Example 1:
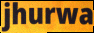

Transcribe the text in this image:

jhurwa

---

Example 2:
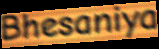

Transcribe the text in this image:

Bhesaniya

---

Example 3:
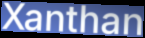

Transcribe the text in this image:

Xanthan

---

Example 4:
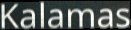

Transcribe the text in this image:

Kalamas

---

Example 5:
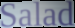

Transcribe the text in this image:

Salad